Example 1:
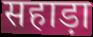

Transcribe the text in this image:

सहाड़ा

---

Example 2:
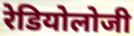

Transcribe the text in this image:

रेडियोलोजी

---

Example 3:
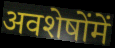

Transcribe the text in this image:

अवशेषोंमें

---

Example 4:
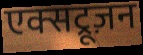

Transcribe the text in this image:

एक्सट्रूज़न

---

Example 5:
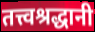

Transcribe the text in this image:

तत्त्वश्रद्धानी